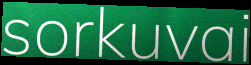
sorkuvai